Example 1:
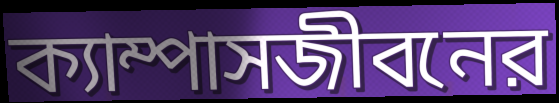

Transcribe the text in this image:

ক্যাম্পাসজীবনের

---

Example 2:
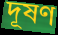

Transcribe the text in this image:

দূষণ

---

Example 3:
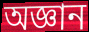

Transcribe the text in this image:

অজ্ঞান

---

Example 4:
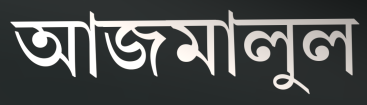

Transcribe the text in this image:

আজমালুল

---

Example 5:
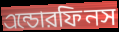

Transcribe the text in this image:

এন্ডোরফিনস